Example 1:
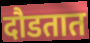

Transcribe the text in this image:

दौडतात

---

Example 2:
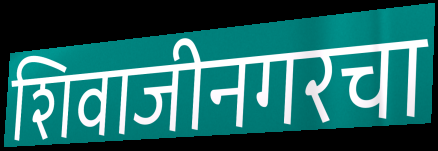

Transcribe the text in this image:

शिवाजीनगरचा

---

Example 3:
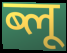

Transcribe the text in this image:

ब्लू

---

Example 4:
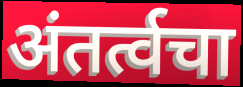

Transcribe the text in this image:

अंतर्त्वचा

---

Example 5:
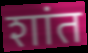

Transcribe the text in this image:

शांत